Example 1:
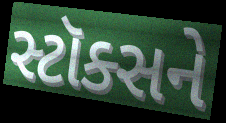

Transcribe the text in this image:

સ્ટૉક્સને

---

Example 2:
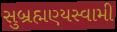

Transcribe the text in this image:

સુબ્રહ્મણ્યસ્વામી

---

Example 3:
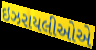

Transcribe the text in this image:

ઇઝરાયલીઓએ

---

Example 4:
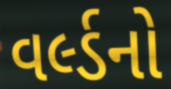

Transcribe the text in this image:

વર્લ્ડનો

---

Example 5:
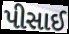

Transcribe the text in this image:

પીસાઈ